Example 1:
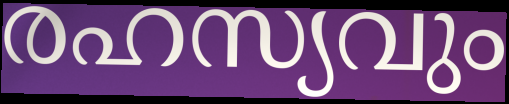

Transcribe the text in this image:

രഹസ്യവും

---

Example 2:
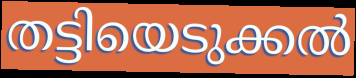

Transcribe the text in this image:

തട്ടിയെടുക്കൽ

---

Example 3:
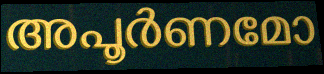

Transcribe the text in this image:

അപൂർണമോ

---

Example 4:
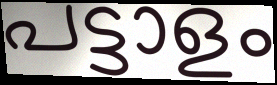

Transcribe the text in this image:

പട്ടാളം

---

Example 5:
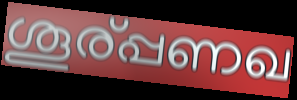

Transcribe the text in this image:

ശൂര്പ്പണഖ